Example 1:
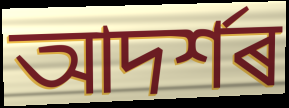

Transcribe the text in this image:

আদৰ্শৰ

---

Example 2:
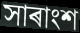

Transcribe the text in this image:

সাৰাংশ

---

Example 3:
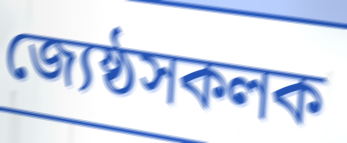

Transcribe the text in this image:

জ্যেষ্ঠসকলক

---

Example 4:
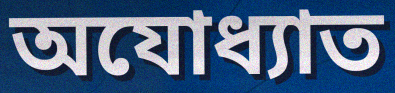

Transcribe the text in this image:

অযোধ্যাত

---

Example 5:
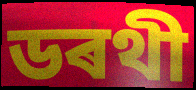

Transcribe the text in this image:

ডৰথী